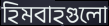
হিমবাহগুলো